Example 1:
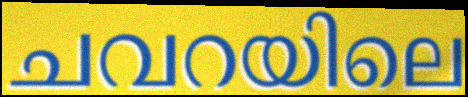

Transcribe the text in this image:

ചവറയിലെ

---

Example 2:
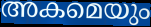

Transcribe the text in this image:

അകമെയും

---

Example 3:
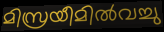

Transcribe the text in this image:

മിസ്രയീമിൽവച്ചു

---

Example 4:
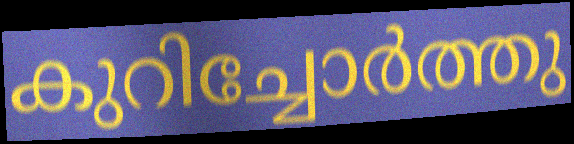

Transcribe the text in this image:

കുറിച്ചോർത്തു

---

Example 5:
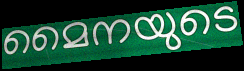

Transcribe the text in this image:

മൈനയുടെ